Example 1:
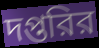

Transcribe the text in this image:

দপ্তরির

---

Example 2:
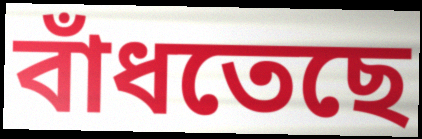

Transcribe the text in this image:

বাঁধতেছে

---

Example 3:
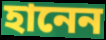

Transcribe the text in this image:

হানেন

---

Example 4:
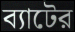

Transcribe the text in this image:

ব্যাটের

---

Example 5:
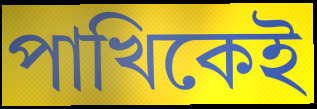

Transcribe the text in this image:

পাখিকেই